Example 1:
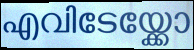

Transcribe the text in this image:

എവിടേയ്ക്കോ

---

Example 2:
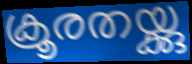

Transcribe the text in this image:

ക്രൂരതയ്ക്കു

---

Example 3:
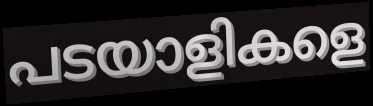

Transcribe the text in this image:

പടയാളികളെ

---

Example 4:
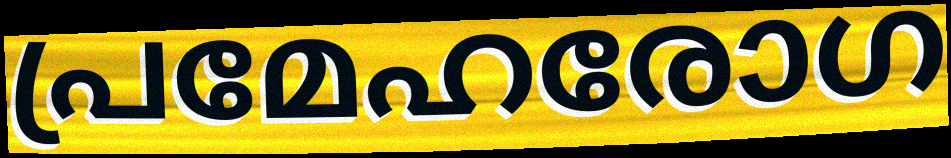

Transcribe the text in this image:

പ്രമേഹരോഗ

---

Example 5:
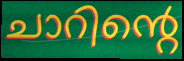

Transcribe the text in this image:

ചാറിന്റെ